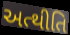
અત્થીતિ